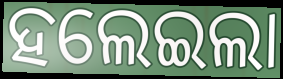
ହଲେଇଲା